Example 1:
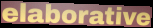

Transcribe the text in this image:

elaborative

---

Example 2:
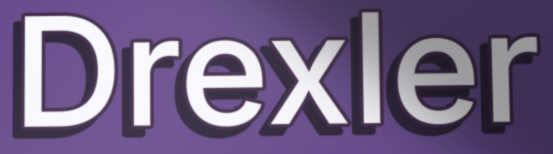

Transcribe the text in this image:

Drexler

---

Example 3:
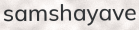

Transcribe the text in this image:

samshayave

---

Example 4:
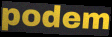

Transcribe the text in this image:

podem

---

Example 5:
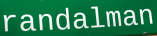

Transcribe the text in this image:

randalman